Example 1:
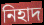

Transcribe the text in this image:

নিহাদ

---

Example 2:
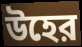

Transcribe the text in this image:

উহের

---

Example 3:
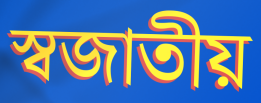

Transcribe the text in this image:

স্বজাতীয়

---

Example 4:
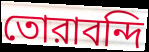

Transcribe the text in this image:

তোরাবন্দি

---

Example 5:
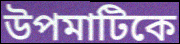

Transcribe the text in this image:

উপমাটিকে